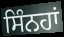
ਸਿੰਨਹਾਂ